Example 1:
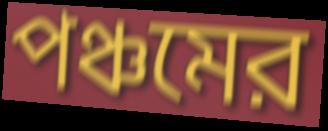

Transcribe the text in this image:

পঞ্চমের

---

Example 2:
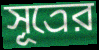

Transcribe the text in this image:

সূত্রের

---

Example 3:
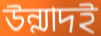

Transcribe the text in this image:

উন্মাদই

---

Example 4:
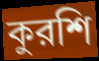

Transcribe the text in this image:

কুরশি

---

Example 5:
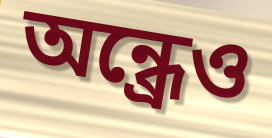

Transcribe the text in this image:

অন্ধ্রেও